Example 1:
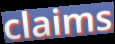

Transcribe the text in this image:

claims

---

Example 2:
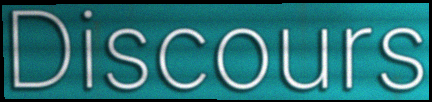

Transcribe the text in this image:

Discours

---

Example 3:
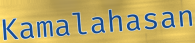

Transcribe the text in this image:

Kamalahasan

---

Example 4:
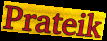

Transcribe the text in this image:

Prateik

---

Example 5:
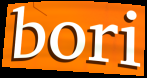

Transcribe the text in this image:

bori